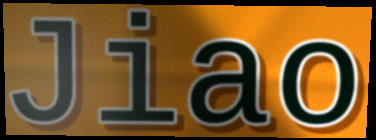
Jiao